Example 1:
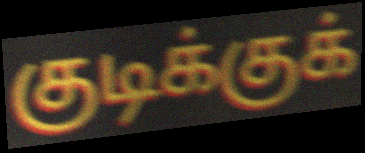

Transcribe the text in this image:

குடிக்குக்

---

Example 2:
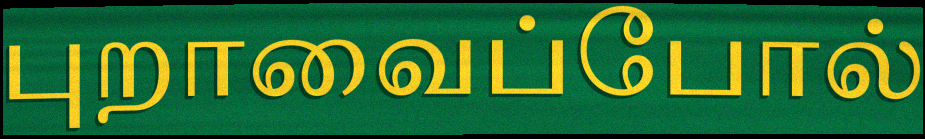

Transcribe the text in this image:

புறாவைப்போல்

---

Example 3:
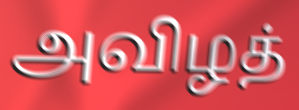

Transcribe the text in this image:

அவிழத்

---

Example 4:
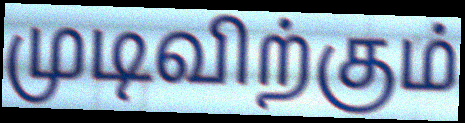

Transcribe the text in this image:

முடிவிற்கும்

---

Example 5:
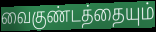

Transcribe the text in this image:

வைகுண்டத்தையும்